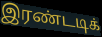
இரண்டடிக்